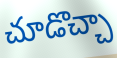
చూడొచ్చా